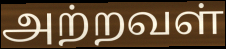
அற்றவள்